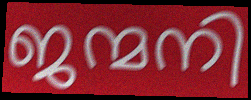
ജന്മനി